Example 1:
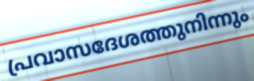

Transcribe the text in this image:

പ്രവാസദേശത്തുനിന്നും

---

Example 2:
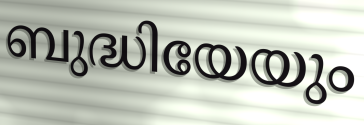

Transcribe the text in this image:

ബുദ്ധിയേയും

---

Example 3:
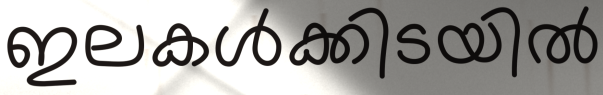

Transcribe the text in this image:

ഇലകൾക്കിടയിൽ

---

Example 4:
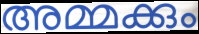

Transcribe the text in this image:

അമ്മക്കും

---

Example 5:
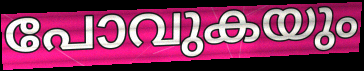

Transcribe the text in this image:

പോവുകയും